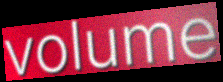
volume